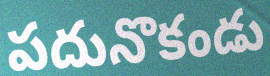
పదునొకండు